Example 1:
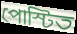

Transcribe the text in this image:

পোস্টিত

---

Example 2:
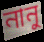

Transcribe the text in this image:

নানু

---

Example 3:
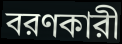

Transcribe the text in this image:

বরণকারী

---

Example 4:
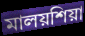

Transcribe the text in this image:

মালয়শিয়া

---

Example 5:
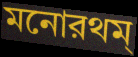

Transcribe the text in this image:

মনোরথম্